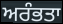
ਅਰੰਭਤਾ